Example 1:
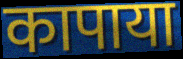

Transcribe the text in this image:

कापाया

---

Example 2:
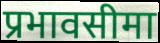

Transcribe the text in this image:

प्रभावसीमा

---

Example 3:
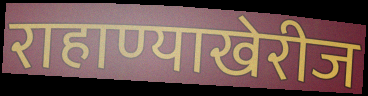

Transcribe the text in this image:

राहाण्याखेरीज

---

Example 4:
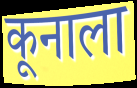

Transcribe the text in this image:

कूनाला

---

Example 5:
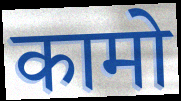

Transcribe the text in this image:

कामो